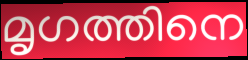
മൃഗത്തിനെ